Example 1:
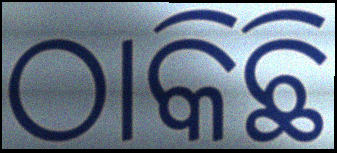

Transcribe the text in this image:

ଠାକିଛି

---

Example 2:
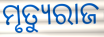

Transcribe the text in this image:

ମୃତ୍ୟୁରାଜ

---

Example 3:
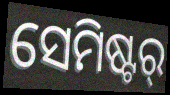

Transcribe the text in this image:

ସେମିଷ୍ଟର୍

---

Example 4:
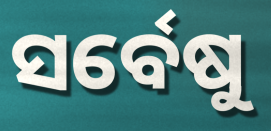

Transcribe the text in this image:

ସର୍ବେଷୁ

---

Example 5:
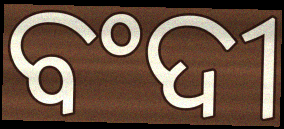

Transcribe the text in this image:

ବଂଦୀ